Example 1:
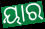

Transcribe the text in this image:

ୟାର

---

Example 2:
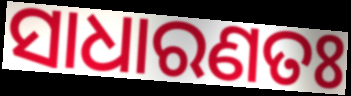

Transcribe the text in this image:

ସାଧାରଣତଃ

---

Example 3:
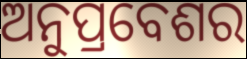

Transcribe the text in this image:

ଅନୁପ୍ରବେଶର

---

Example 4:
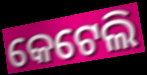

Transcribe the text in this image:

କେଟେଲି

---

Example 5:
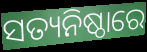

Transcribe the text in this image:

ସତ୍ୟନିଷ୍ଠାରେ